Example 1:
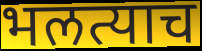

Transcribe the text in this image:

भलत्याच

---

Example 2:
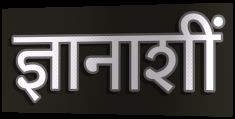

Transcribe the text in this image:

ज्ञानाशीं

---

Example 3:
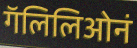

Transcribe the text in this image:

गॅलिलिओनं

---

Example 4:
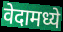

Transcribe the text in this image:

वेदामध्ये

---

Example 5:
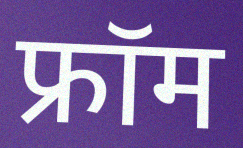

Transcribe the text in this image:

फ्रॉम